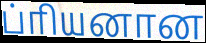
ப்ரியனான